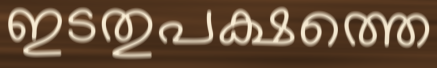
ഇടതുപക്ഷത്തെ